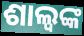
ଶାଲ୍ୱଙ୍କ